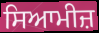
ਸਿਆਮੀਜ਼